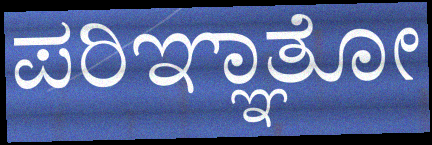
ಪರಿಞ್ಞಾತೋ